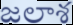
జలాశ